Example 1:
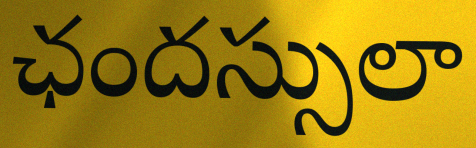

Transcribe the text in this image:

ఛందస్సులా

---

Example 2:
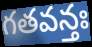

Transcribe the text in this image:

గతవన్తః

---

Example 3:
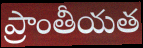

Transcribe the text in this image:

ప్రాంతీయత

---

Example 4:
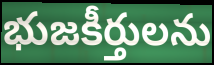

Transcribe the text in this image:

భుజకీర్తులను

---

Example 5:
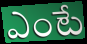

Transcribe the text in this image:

ఎంటే